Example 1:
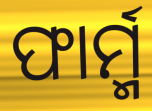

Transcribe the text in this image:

ଫାର୍ମ୍ମ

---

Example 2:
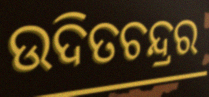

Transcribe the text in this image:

ଉଦିତଚନ୍ଦ୍ରର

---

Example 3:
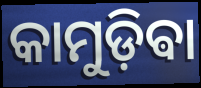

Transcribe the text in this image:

କାମୁଡ଼ିଵା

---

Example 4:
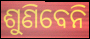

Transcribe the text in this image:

ଶୁଣିବେନି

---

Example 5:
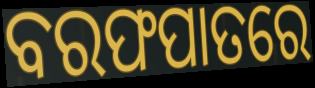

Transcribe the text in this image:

ବରଫପାତରେ